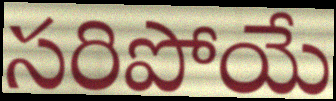
సరిపోయే